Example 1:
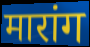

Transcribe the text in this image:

मारांग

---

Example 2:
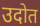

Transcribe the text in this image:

उदोत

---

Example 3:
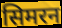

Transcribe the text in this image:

सिमरन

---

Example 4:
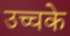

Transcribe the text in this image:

उच्चके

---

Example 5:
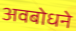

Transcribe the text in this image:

अवबोधने